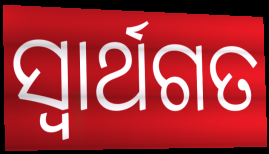
ସ୍ୱାର୍ଥଗତ